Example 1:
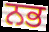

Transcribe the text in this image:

ਨਭ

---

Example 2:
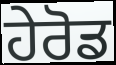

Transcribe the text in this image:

ਹੇਰੋਡ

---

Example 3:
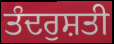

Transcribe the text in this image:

ਤੰਦਰੁਸ਼ਤੀ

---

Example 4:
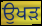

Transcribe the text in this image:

ਉਖੜ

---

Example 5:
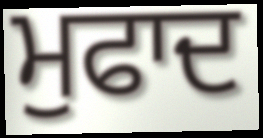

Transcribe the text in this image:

ਮੁਫਾਦ